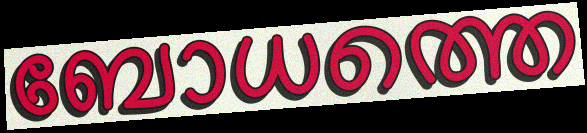
ബോധത്തെ